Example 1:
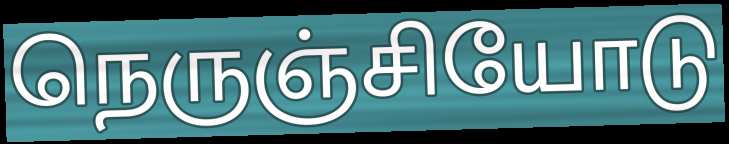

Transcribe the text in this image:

நெருஞ்சியோடு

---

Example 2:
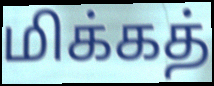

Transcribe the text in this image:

மிக்கத்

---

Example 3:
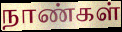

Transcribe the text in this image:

நாண்கள்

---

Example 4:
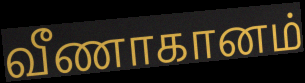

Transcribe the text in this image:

வீணாகானம்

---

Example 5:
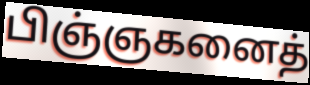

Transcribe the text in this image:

பிஞ்ஞகனைத்